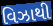
વિઝાથી